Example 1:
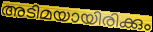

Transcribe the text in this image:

അടിമയായിരിക്കും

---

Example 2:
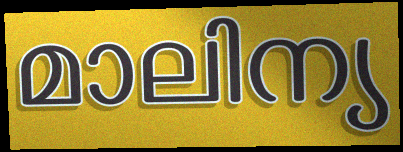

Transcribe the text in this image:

മാലിന്യ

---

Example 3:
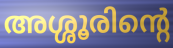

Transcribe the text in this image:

അശ്ശൂരിന്റെ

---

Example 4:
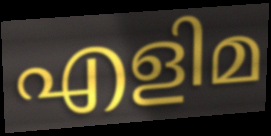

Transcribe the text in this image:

എളിമ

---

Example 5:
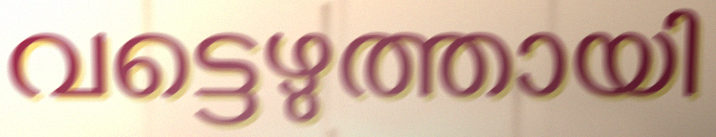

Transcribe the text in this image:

വട്ടെഴുത്തായി